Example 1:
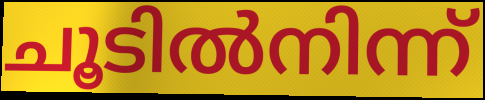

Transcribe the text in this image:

ചൂടിൽനിന്ന്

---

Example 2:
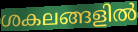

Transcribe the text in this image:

ശകലങ്ങളിൽ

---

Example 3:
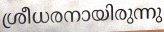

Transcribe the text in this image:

ശ്രീധരനായിരുന്നു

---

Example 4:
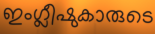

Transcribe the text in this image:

ഇംഗ്ലീഷുകാരുടെ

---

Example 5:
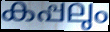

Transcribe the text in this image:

കപ്പലും